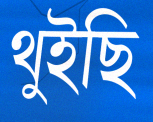
থুইছি